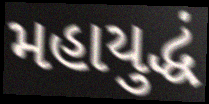
મહાયુદ્ધં